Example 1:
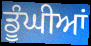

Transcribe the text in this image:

ਡੂੰਘੀਆਂ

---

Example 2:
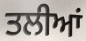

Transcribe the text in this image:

ਤਲੀਆਂ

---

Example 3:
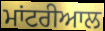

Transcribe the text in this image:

ਮਾਂਟਰੀਆਲ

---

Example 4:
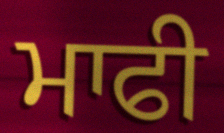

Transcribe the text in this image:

ਮਾਫੀ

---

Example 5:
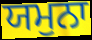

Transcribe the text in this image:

ਯਮੁਨਾ